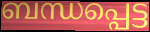
ബന്ധപ്പെട്ട